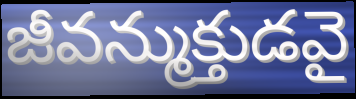
జీవన్ముక్తుడవై